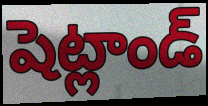
షెట్లాండ్